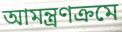
আমন্ত্ৰণক্ৰমে